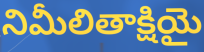
నిమీలితాక్షియై